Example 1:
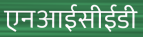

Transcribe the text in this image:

एनआईसीईडी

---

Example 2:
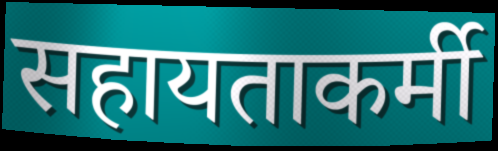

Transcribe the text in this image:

सहायताकर्मी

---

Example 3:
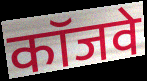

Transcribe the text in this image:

कॉजवे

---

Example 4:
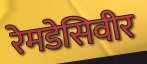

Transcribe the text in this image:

रेमडेसिवीर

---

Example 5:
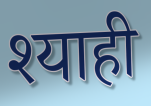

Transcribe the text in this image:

श्याही